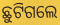
ଛୁଟିଗଲେ